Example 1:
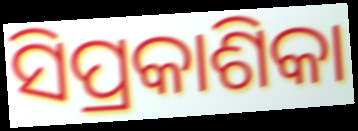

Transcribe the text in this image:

ସିପ୍ରକାଶିକା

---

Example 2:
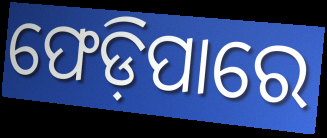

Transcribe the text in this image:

ଫେଡ଼ିପାରେ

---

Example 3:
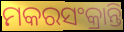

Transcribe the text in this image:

ମକରସଂକ୍ରାନ୍ତି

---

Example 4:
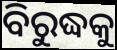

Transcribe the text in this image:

ବିରୁଦ୍ଧକୁ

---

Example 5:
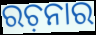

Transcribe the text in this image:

ରଚ଼ନାର